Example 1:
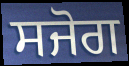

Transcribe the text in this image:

ਸਜੋਗ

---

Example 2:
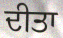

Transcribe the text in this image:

ਦੀਤਾ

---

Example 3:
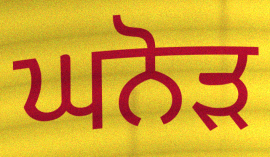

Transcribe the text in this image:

ਘਨੋੜ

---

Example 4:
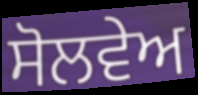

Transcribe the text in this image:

ਸੋਲਵੇਅ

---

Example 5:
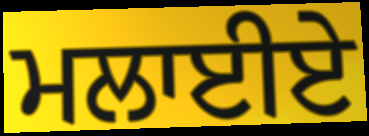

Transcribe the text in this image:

ਮਲਾਈਏ